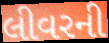
લીવરની